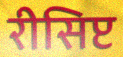
रीसिप्ट